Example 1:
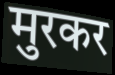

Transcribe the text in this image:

मुरकर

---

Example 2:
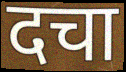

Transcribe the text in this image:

दचा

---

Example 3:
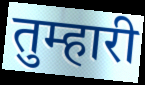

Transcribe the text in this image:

तुम्‍हारी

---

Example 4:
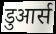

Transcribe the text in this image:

डुआर्स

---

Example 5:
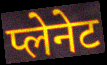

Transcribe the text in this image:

प्लेनेट